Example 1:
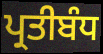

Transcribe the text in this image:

ਪ੍ਰਤੀਬੰਧ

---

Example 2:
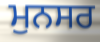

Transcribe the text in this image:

ਮੁਨਸਰ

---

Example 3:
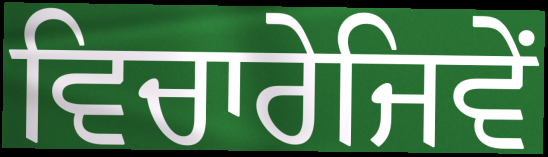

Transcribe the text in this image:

ਵਿਚਾਰੇਜਿਵੇਂ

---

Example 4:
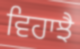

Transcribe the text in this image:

ਵਿਹਾਝੈ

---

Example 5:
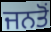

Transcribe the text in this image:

ਜਨਤੋਂ